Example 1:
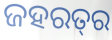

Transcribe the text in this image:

ଜହରତ୍‍ର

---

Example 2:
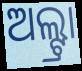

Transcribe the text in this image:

ଅଲ୍ଟ୍ରା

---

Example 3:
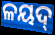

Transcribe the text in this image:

ଳୟଦ୍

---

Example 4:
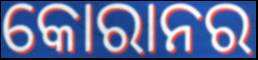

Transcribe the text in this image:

କୋରାନର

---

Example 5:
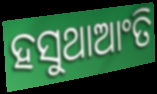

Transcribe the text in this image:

ହସୁଥାଆଂତି